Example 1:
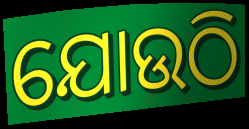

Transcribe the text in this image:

ଯୋଉଠି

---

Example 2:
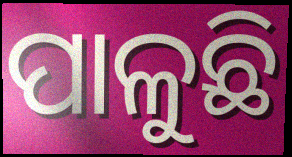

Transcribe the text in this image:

ପାଳୁଛି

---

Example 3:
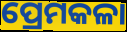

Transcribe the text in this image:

ପ୍ରେମକଳା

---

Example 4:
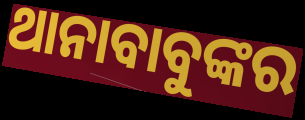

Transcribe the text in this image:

ଥାନାବାବୁଙ୍କର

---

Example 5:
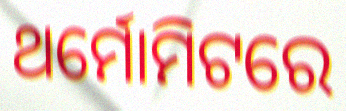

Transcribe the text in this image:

ଥର୍ମୋମିଟରେ